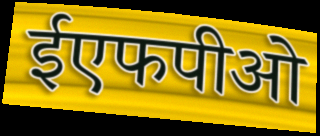
ईएफपीओ